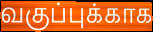
வகுப்புக்காக